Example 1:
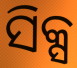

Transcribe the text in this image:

ସିକ୍ସ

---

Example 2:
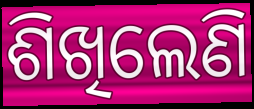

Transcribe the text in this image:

ଶିଖିଲେଣି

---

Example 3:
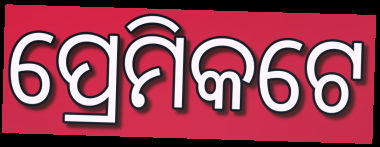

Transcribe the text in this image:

ପ୍ରେମିକଟେ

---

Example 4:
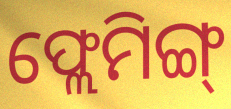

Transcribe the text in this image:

ଫ୍ଲେମିଙ୍ଗ୍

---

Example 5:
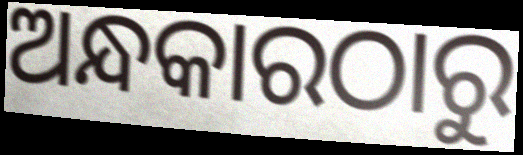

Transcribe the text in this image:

ଅନ୍ଧକାରଠାରୁ